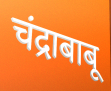
चंद्राबाबू